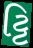
ટ્ટિ